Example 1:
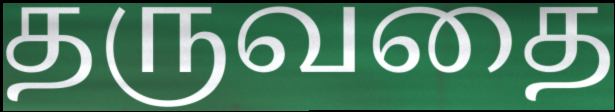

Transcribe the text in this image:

தருவதை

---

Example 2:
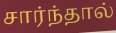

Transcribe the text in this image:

சார்ந்தால்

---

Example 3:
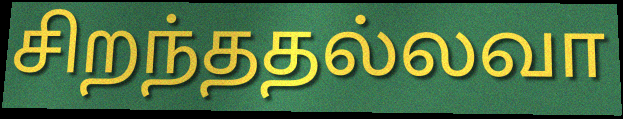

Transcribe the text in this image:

சிறந்ததல்லவா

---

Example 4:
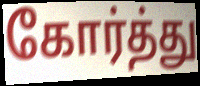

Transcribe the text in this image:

கோர்த்து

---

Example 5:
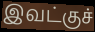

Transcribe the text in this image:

இவட்குச்